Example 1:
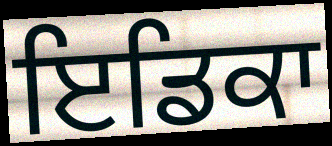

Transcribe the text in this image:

ਇਡਿਕਾ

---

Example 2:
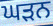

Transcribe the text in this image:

ਘੜਨ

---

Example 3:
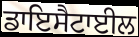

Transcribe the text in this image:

ਡਾਇਸੈਟਾਈਲ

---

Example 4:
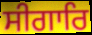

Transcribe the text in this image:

ਸੀਗਾਰਿ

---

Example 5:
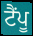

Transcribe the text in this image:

ਟੈਂਪੂ